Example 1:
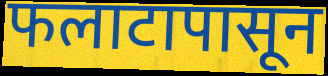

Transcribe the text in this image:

फलाटापासून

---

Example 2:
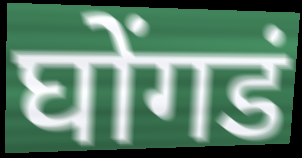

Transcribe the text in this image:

घोंगडं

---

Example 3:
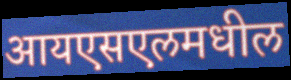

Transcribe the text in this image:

आयएसएलमधील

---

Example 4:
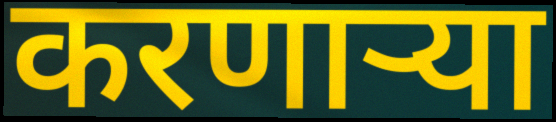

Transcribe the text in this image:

करणाऱ्या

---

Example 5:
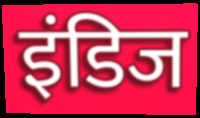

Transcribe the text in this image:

इंडिज